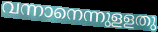
വന്നാനെന്നുളളതു